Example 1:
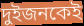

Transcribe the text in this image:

দুইজনকেই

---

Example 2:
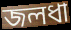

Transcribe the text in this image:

জলধা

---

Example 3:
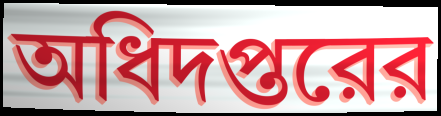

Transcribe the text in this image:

অধিদপ্তরের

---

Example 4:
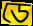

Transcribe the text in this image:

ডে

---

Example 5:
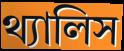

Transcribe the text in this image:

থ্যালিস